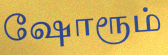
ஷோரூம்